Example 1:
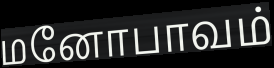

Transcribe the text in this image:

மனோபாவம்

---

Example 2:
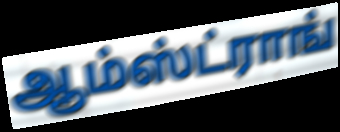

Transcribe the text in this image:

ஆம்ஸ்ட்ராங்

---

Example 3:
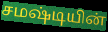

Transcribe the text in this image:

சமஷ்டியின்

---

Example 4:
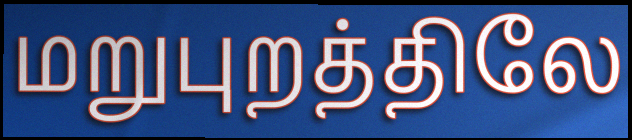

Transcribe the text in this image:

மறுபுறத்திலே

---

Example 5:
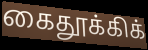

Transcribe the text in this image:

கைதூக்கிக்